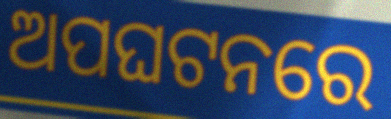
ଅପଘଟନରେ